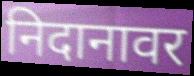
निदानावर